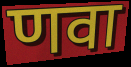
णवा